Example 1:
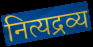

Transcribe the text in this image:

नित्यद्रव्य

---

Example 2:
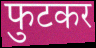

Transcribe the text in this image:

फुटकर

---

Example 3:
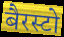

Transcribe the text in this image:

बैरस्टो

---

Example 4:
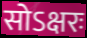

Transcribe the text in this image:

सोऽक्षरः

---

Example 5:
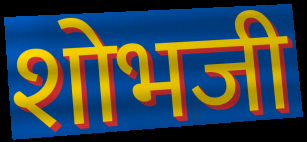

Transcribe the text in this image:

शोभजी